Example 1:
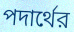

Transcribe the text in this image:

পদার্থের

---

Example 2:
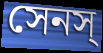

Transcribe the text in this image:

সেনস্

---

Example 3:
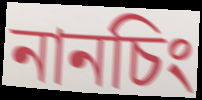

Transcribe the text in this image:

নানচিং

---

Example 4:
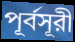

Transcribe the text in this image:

পূর্বসূরী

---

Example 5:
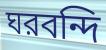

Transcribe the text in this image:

ঘরবন্দি